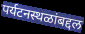
पर्यटनस्थळांबद्दल